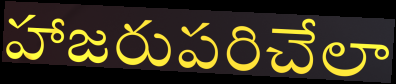
హాజరుపరిచేలా